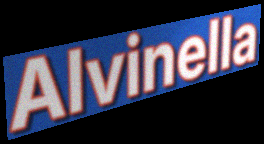
Alvinella